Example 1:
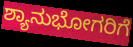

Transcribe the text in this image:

ಶ್ಯಾನುಭೋಗರಿಗೆ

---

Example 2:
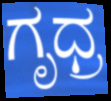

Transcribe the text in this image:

ಗೃಧ್ರ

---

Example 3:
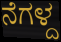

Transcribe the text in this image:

ನೆಗಳ್ದ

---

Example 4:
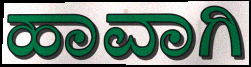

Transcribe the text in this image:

ಹಾವಾಗಿ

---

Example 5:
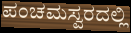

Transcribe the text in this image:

ಪಂಚಮಸ್ವರದಲ್ಲಿ